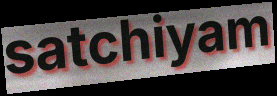
satchiyam